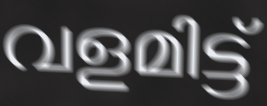
വളമിട്ട്